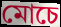
মোচে